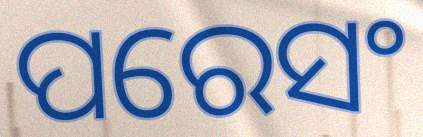
ପରେସଂ